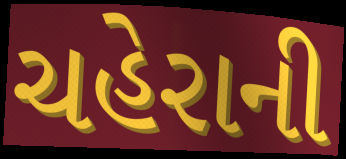
ચહેરાની